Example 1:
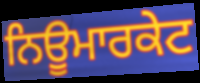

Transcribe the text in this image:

ਨਿਊਮਾਰਕੇਟ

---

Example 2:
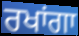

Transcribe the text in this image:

ਰਖਾਂਗਾ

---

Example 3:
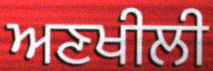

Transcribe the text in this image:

ਅਣਖੀਲੀ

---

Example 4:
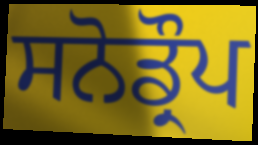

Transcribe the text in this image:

ਸਨੋਡ੍ਰੌਪ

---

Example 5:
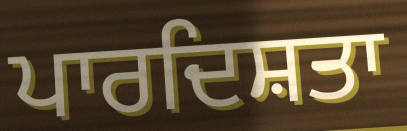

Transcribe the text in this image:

ਪਾਰਦਿਸ਼ਤਾ